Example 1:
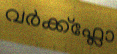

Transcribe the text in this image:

വർക്ക്ഫ്ലോ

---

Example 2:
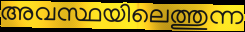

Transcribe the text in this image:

അവസ്ഥയിലെത്തുന്ന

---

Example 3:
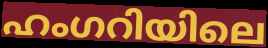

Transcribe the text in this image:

ഹംഗറിയിലെ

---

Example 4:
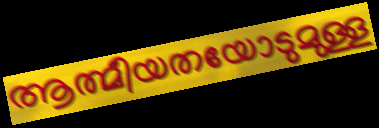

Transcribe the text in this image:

ആത്മീയതയോടുമുള്ള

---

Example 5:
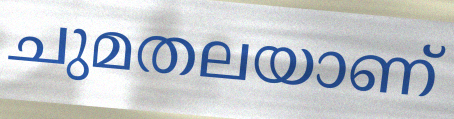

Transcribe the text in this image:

ചുമതലയാണ്